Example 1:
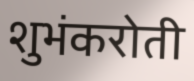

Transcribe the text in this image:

शुभंकरोती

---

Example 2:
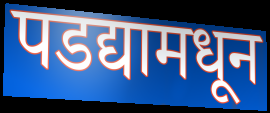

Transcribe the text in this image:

पडद्यामधून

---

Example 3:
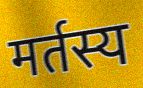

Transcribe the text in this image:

मर्तस्य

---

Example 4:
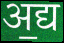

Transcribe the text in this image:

अ॒द्य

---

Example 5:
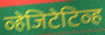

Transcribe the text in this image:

व्हेजिटेटिव्ह